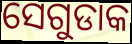
ସେଗୁଡାକ